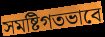
সমষ্টিগতভাবে